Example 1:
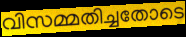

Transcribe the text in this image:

വിസമ്മതിച്ചതോടെ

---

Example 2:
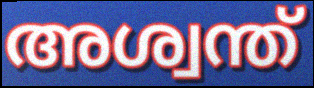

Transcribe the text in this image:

അശ്വന്ത്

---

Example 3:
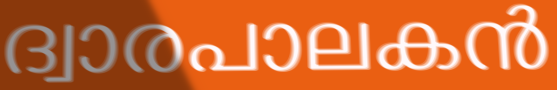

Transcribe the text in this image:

ദ്വാരപാലകൻ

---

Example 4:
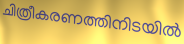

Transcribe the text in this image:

ചിത്രീകരണത്തിനിടയിൽ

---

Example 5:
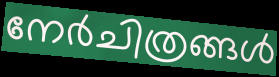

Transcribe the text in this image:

നേർചിത്രങ്ങൾ